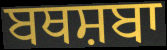
ਬਥਸ਼ਬਾ